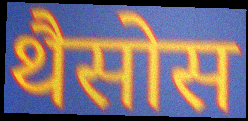
थैसोस